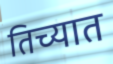
तिच्यात